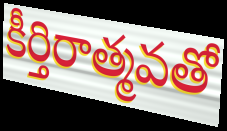
కీర్తిరాత్మవతో